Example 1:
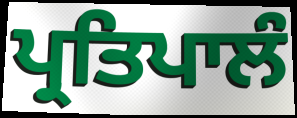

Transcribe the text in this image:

ਪ੍ਰਤਿਪਾਲੰ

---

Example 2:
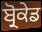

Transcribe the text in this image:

ਬ੍ਰੋਕੇਡ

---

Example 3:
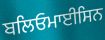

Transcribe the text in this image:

ਬਲਿਓਮਾਈਸਿਨ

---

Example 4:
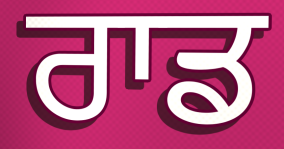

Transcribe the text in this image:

ਰਾਡ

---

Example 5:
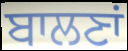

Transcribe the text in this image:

ਬਾਲਣਾਂ